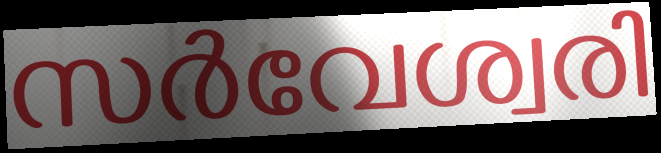
സർവേശ്വരി